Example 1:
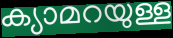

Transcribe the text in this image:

ക്യാമറയുള്ള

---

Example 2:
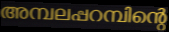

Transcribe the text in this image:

അമ്പലപ്പറമ്പിന്റെ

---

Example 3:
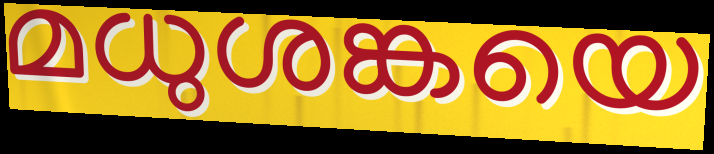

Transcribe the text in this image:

മധുശങ്കയെ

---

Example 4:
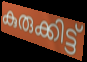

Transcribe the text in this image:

കുരുക്കിട്ട്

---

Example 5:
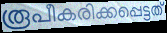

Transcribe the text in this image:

രൂപീകരിക്കപ്പെട്ടത്